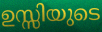
ഉസ്സിയുടെ